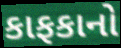
કાફકાનો